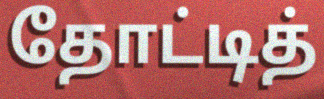
தோட்டித்